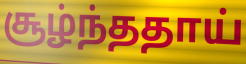
சூழ்ந்ததாய்